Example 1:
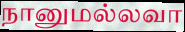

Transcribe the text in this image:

நானுமல்லவா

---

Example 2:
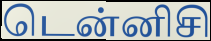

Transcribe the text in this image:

டென்னிசி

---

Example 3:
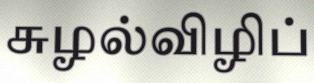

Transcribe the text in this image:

சுழல்விழிப்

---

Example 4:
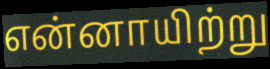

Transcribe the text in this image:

என்னாயிற்று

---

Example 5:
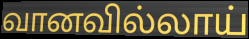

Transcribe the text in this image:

வானவில்லாய்